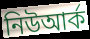
নিউআর্ক